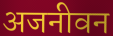
अजनीवन